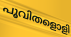
പൂവിതളൊളി